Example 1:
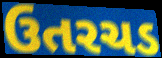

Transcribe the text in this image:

ઉતરચડ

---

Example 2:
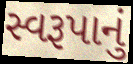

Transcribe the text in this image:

સ્વરૂપાનું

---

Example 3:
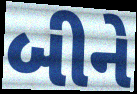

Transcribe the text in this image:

બીને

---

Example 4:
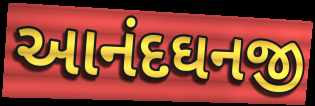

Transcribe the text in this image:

આનંદઘનજી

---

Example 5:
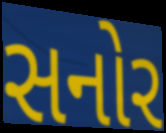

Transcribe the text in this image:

સનોર